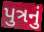
પુત્રનું